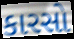
કારસો